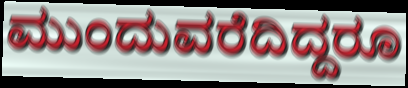
ಮುಂದುವರೆದಿದ್ದರೂ